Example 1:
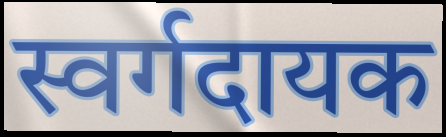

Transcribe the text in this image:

स्वर्गदायक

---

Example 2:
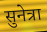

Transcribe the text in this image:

सुनेत्रा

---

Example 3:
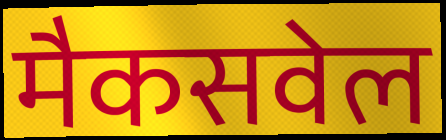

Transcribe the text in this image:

मैकसवेल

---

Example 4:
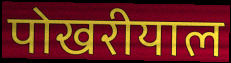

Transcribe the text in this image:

पोखरीयाल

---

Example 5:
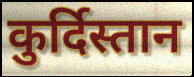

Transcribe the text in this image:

कुर्दिस्तान